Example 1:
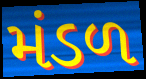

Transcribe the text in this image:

મંડળ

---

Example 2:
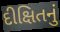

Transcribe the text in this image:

દીક્ષિતનું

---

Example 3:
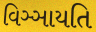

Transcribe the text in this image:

વિઞ્ઞાયતિ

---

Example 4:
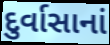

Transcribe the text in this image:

દુર્વાસાનાં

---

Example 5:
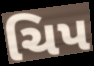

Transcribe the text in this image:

ચિપ